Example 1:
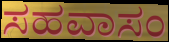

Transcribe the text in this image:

ಸಹವಾಸಂ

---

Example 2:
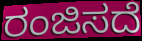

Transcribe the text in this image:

ರಂಜಿಸದೆ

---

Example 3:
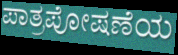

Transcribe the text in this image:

ಪಾತ್ರಪೋಷಣೆಯ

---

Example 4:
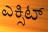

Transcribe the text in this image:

ಎಕ್ಸಿಟ್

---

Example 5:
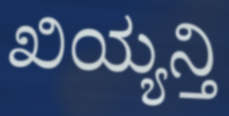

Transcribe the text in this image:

ಖಿಯ್ಯನ್ತಿ